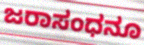
ಜರಾಸಂಧನೂ